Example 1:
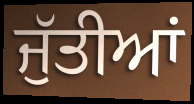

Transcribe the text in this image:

ਜੁੱਤੀਆਂ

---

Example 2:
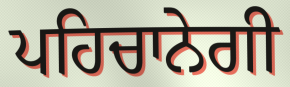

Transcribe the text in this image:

ਪਹਿਚਾਨੇਗੀ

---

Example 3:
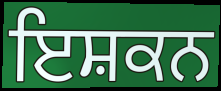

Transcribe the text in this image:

ਇਸ਼ਕਨ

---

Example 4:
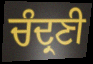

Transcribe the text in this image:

ਚੰਦ੍ਰਣੀ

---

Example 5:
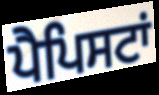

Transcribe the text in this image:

ਪੈਪਿਸਟਾਂ